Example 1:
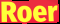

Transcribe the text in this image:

Roer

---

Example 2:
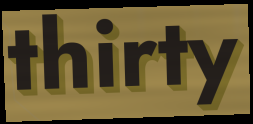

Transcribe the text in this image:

thirty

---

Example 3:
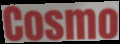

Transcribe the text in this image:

Cosmo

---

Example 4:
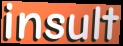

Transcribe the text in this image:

insult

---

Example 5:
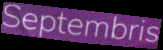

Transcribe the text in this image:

Septembris